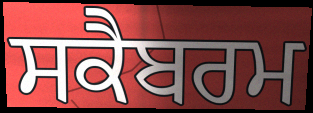
ਸਕੈਬਰਮ